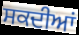
ਸਕਦੀਆਂ